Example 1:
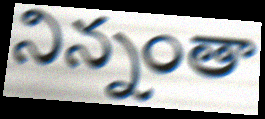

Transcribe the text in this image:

నిన్నంతా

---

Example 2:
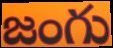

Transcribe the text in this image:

జంగు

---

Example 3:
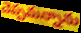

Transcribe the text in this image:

చెప్పమన్నాను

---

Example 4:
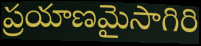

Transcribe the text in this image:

ప్రయాణమైసాగిరి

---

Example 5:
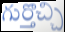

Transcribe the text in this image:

గుర్తొచ్చి